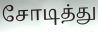
சோடித்து